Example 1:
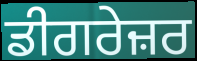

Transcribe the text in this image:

ਡੀਗਰੇਜ਼ਰ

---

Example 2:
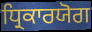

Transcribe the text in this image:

ਧ੍ਰਿਕਾਰਯੋਗ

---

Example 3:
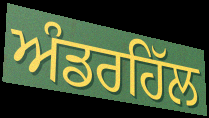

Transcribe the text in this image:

ਅੰਡਰਹਿੱਲ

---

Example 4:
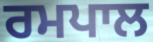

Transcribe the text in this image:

ਰਮਪਾਲ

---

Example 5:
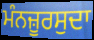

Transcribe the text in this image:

ਮੰਨਜ਼ੂਰਸੁਦਾ